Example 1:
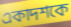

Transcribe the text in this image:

একাদশকে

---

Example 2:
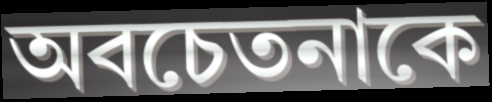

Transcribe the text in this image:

অবচেতনাকে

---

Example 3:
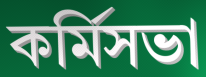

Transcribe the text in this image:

কর্মিসভা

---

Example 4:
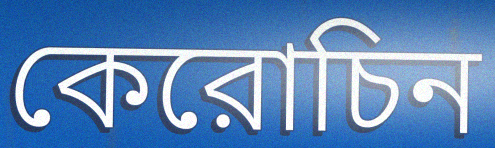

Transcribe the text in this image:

কেরোচিন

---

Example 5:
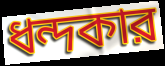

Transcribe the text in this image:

ধন্দকার